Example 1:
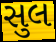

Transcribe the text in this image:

સુલ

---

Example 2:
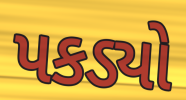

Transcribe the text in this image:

પકડ્યો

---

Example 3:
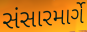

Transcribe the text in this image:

સંસારમાર્ગે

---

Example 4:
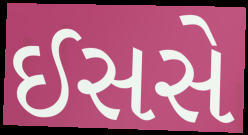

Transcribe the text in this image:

ઈસસે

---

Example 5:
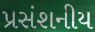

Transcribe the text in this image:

પ્રસંશનીય